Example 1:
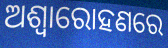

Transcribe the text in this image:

ଅଶ୍ୱାରୋହଣରେ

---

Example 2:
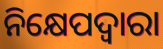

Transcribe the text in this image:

ନିକ୍ଷେପଦ୍ୱାରା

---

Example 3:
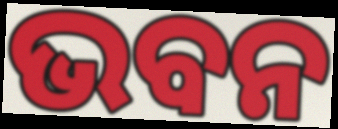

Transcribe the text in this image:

ଭବନ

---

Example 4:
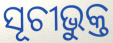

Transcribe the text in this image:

ସୂଚୀଭୁକ୍ତ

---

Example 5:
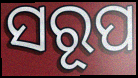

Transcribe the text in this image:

ସରୂପ